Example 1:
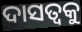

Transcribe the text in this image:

ଦାସତ୍ୱକୁ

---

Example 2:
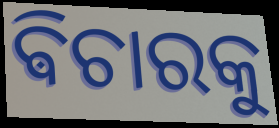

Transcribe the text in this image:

ଵିଚାରକୁ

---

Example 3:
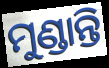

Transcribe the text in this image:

ମୁଣ୍ଡାନ୍ତି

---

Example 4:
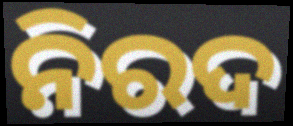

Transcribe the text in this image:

ନିରଦ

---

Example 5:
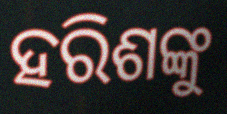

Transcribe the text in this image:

ହରିଶଙ୍କୁ